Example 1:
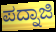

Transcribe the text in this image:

ಪದ್ನಾಜಿ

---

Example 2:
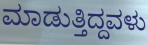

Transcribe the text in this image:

ಮಾಡುತ್ತಿದ್ದವಳು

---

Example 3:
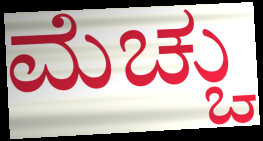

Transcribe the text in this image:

ಮೆಚ್ಚು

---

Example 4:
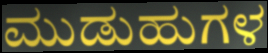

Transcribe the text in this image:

ಮುಡುಹುಗಳ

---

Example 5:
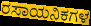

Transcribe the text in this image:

ರಸಾಯನಿಕಗಳ